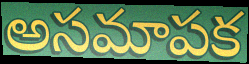
అసమాపక